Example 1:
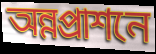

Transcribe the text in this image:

অন্নপ্রাশনে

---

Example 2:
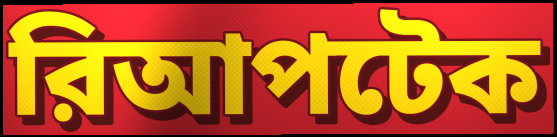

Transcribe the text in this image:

রিআপটেক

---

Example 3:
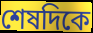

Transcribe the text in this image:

শেষদিকে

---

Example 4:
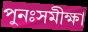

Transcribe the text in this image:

পুনঃসমীক্ষা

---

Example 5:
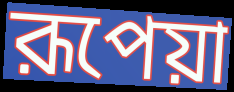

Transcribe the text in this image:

রূপেয়া